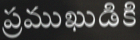
ప్రముఖుడికి